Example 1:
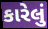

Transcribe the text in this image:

કારેલું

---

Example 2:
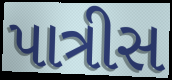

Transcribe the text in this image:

પાત્રીસ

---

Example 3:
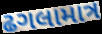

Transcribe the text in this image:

ઢગલામાત્ર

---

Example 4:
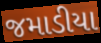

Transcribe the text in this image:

જમાડીયા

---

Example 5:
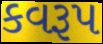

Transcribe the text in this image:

કવરૂપ